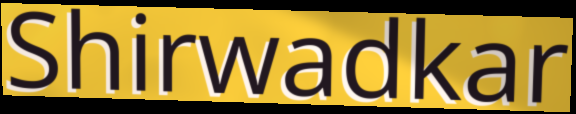
Shirwadkar